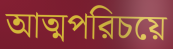
আত্মপরিচয়ে